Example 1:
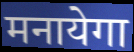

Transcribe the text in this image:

मनायेगा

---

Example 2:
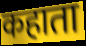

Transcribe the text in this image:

कहाता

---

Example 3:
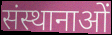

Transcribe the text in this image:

संस्थानाओं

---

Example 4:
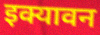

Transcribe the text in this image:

इक्यावन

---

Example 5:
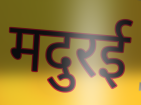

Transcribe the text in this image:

मदुरई